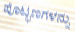
ಪೊಟ್ಟಣಗಳನ್ನು